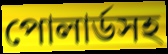
পোলার্ডসহ